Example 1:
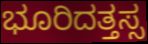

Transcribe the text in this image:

ಭೂರಿದತ್ತಸ್ಸ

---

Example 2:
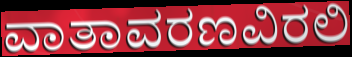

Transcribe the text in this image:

ವಾತಾವರಣವಿರಲಿ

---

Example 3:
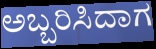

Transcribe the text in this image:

ಅಬ್ಬರಿಸಿದಾಗ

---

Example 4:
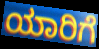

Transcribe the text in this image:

ಯಾರಿಗೆ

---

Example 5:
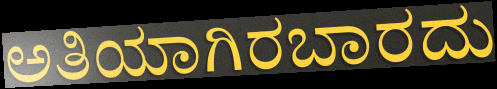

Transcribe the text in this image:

ಅತಿಯಾಗಿರಬಾರದು